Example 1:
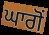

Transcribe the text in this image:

ਘਾਗੋਂ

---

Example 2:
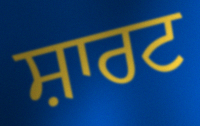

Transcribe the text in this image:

ਸ਼ਾਰਟ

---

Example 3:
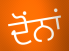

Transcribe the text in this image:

ਦੋਂਨਾਂ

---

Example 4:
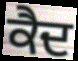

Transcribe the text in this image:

ਕੈਦ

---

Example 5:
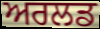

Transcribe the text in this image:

ਅਰਲਡ